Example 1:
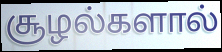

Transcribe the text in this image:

சூழல்களால்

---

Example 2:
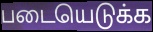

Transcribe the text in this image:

படையெடுக்க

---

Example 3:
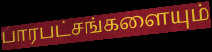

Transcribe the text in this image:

பாரபட்சங்களையும்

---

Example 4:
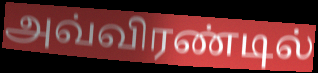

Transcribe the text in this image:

அவ்விரண்டில்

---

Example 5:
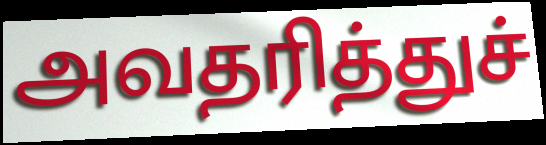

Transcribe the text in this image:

அவதரித்துச்